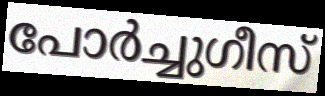
പോർച്ചുഗീസ്